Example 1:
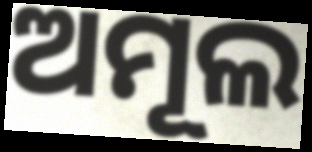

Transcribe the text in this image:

ଅମୂଲ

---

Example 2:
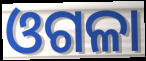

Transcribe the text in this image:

ଓଗଳା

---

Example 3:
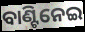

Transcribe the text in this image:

ବାଣ୍ଟିନେଇ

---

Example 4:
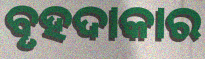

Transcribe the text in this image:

ବୃହଦାକାର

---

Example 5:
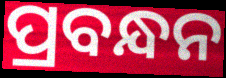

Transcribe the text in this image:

ପ୍ରବନ୍ଧନ